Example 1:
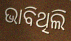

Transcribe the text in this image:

ଭାବିଥିଲି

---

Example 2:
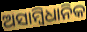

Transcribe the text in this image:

ଅସାମ୍ବିଧାନିକ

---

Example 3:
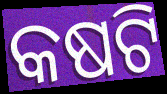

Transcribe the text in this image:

କଷଟି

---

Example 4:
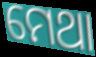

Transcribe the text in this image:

ମେଥା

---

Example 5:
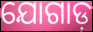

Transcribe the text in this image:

ଯୋଗାଡ଼